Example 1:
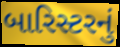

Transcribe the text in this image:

બારિસ્ટરનું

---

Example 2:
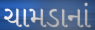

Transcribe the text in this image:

ચામડાનાં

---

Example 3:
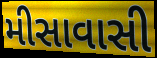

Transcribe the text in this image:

મીસાવાસી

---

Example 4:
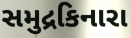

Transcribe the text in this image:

સમુદ્રકિનારા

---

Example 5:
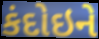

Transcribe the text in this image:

કંદોઇને